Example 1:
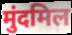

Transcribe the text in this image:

मुंदमिल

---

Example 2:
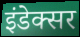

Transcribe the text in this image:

इंडेक्सर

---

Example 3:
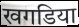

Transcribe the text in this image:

खगडिया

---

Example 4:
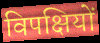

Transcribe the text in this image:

विपक्षियों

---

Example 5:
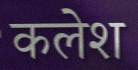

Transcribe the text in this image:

कलेश